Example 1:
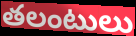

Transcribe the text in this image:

తలంటులు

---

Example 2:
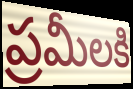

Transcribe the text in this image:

ప్రమీలకి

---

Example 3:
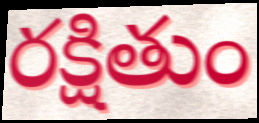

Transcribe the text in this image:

రక్షితుం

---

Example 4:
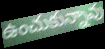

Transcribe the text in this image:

ఉంచుకున్నావు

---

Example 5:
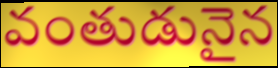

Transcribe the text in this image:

వంతుడునైన